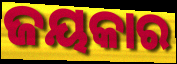
ଜୟକାର